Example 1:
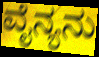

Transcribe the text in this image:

ವೈನ್ಯನು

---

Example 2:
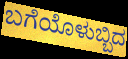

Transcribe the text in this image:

ಬಗೆಯೊಳುಬ್ಬಿದ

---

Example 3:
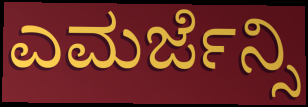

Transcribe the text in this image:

ಎಮರ್ಜೆನ್ಸಿ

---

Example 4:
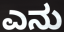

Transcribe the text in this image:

ಎನು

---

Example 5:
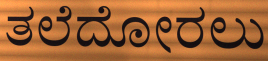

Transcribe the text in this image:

ತಲೆದೋರಲು